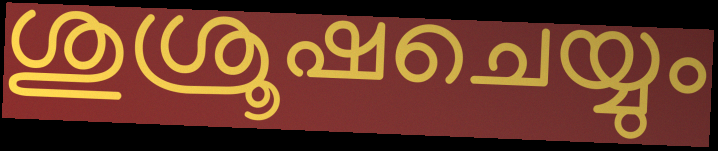
ശുശ്രൂഷചെയ്യും